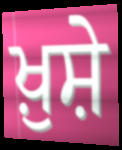
ਖ਼ੁਸ਼ੇ